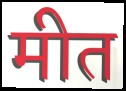
मीत